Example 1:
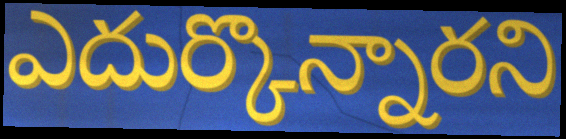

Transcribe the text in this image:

ఎదుర్కొన్నారని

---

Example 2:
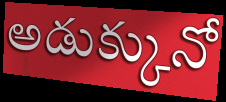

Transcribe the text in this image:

అడుక్కునో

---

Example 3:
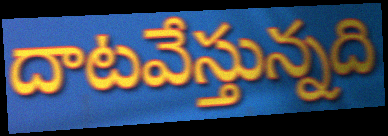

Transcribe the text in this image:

దాటవేస్తున్నది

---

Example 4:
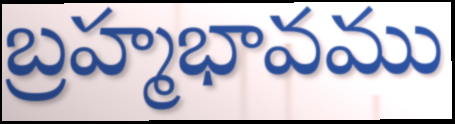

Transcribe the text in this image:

బ్రహ్మభావము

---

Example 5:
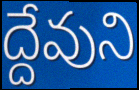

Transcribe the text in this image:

ద్దేవుని